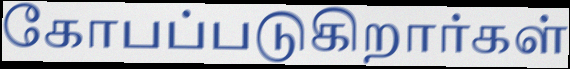
கோபப்படுகிறார்கள்